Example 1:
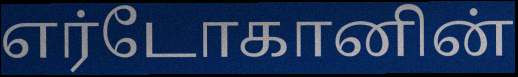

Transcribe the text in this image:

எர்டோகானின்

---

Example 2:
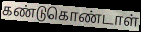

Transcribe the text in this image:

கண்டுகொண்டாள்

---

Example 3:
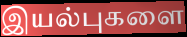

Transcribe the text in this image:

இயல்புகளை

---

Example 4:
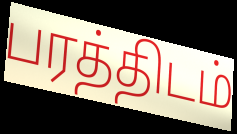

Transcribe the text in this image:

பரத்திடம்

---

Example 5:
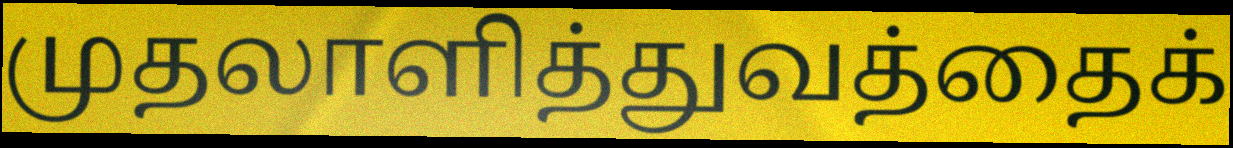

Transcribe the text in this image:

முதலாளித்துவத்தைக்